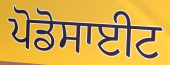
ਪੋਡੋਸਾਈਟ